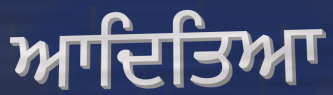
ਆਦਿਤਿਆ